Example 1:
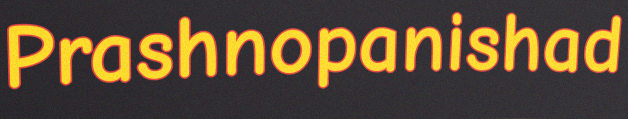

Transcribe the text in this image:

Prashnopanishad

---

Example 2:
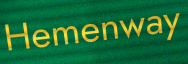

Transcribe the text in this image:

Hemenway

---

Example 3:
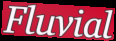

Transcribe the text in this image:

Fluvial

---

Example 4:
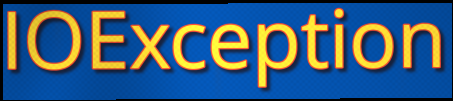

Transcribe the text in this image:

IOException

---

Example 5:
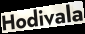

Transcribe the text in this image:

Hodivala